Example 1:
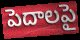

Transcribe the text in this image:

పెదాలపై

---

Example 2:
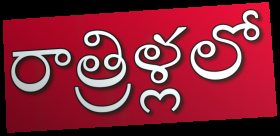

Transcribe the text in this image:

రాత్రిళ్లలో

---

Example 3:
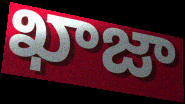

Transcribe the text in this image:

ఖాజా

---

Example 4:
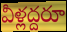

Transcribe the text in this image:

వీళ్లద్దరూ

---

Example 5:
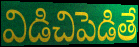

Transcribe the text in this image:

విడిచిపెడితే